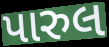
પારુલ